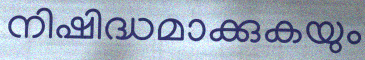
നിഷിദ്ധമാക്കുകയും